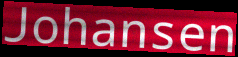
Johansen